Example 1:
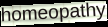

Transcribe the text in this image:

homeopathy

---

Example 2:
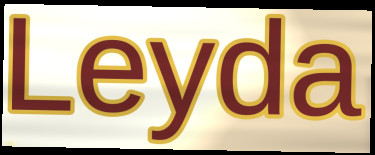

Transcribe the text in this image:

Leyda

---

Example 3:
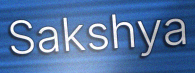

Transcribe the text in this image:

Sakshya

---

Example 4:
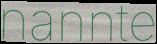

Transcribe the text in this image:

nannte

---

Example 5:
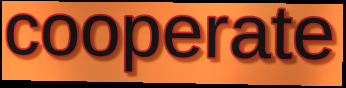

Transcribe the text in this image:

cooperate